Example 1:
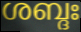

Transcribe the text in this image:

ശബ്ദഃ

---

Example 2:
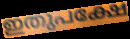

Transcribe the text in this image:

ഇതുപക്ഷേ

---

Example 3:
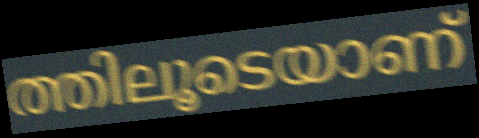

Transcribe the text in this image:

ത്തിലൂടെയാണ്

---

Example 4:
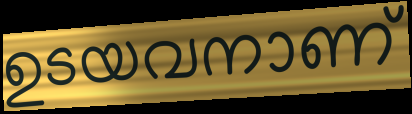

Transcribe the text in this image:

ഉടയവനാണ്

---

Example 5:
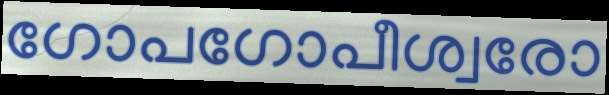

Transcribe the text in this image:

ഗോപഗോപീശ്വരോ